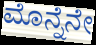
ಮೊನ್ನೆನೇ